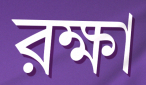
রক্ষা